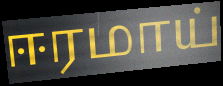
ஈரமாய்